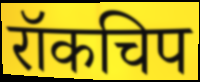
रॉकचिप